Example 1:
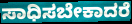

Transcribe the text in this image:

ಸಾಧಿಸಬೇಕಾದರೆ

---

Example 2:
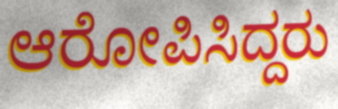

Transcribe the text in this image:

ಆರೋಪಿಸಿದ್ದರು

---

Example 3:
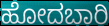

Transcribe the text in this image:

ಹೋದಬಾರಿ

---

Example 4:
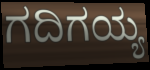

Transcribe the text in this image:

ಗದಿಗಯ್ಯ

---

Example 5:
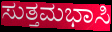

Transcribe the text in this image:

ಸುತ್ತಮಭಾಸಿ